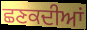
ਛਣਕਦੀਆਂ